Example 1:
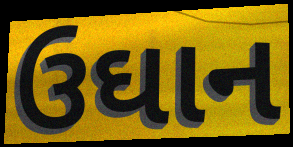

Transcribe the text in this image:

ઉઘાન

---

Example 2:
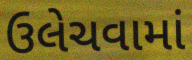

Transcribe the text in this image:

ઉલેચવામાં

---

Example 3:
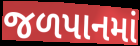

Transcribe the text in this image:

જળપાનમાં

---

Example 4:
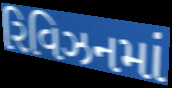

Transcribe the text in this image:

રિવિઝનમાં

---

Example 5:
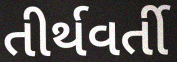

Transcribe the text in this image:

તીર્થવર્તી